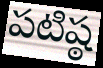
పటిష్ఠ